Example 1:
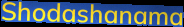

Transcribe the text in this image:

Shodashanama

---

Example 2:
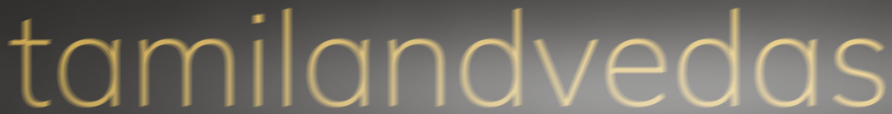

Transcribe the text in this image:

tamilandvedas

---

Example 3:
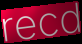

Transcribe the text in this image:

recd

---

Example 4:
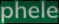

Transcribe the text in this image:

phele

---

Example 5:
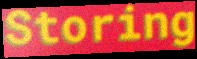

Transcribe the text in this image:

Storing